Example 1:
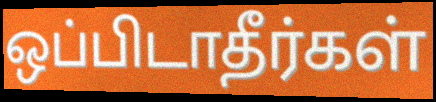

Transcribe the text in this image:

ஒப்பிடாதீர்கள்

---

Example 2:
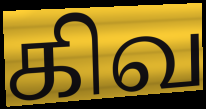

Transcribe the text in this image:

கிவ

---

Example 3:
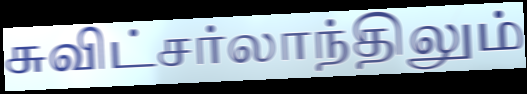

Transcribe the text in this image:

சுவிட்சர்லாந்திலும்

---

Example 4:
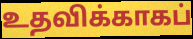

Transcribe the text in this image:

உதவிக்காகப்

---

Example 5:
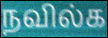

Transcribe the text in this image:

நவில்க